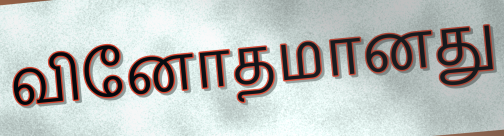
வினோதமானது